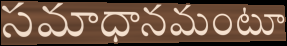
సమాధానమంటూ